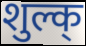
शुल्क्